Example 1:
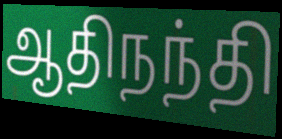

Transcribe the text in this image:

ஆதிநந்தி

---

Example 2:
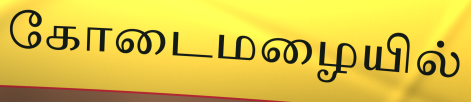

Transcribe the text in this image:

கோடைமழையில்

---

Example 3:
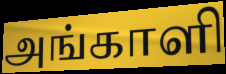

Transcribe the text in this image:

அங்காளி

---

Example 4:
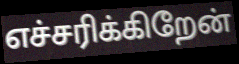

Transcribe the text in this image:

எச்சரிக்கிறேன்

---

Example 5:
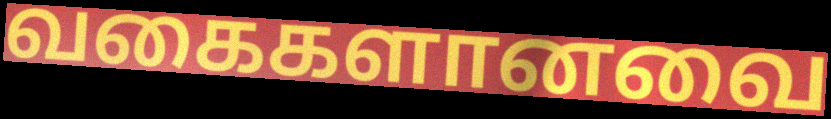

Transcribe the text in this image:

வகைகளானவை